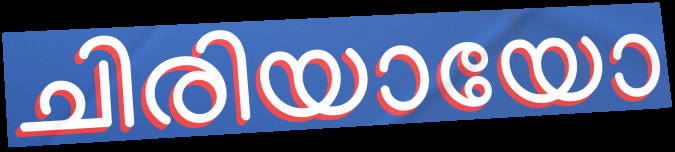
ചിരിയായോ